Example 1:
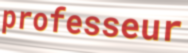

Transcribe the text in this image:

professeur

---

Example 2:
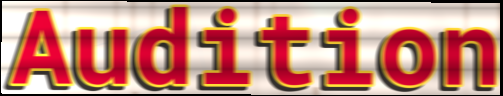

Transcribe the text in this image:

Audition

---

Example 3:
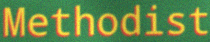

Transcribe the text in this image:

Methodist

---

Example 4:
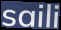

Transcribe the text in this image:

saili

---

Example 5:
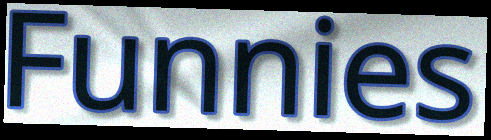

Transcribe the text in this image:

Funnies